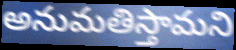
అనుమతిస్తామని